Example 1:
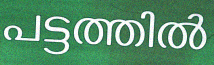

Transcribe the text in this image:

പട്ടത്തിൽ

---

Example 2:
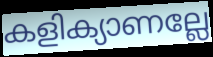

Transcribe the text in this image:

കളിക്യാണല്ലേ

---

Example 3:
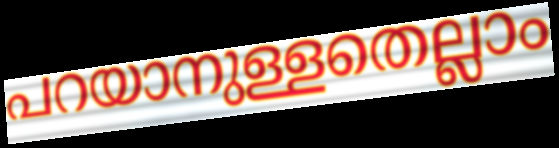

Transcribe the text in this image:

പറയാനുള്ളതെല്ലാം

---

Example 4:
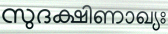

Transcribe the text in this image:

സുദക്ഷിണാഖ്യഃ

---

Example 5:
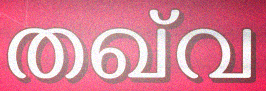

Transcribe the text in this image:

തഖ്‌വ